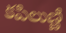
కపిలుణ్ణి